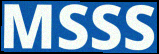
MSSS